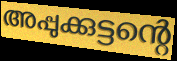
അപ്പുക്കുട്ടന്റെ